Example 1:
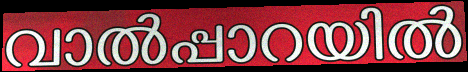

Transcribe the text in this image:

വാൽപ്പാറയിൽ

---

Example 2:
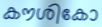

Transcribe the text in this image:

കൗശികോ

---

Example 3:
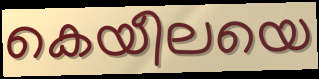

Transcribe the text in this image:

കെയീലയെ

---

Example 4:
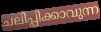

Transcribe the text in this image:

ചലിപ്പിക്കാവുന്ന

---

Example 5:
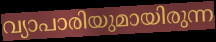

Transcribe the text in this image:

വ്യാപാരിയുമായിരുന്ന